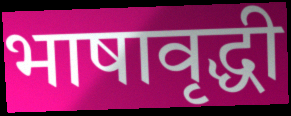
भाषावृद्धी